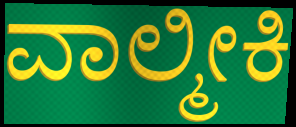
ವಾಲ್ಮೀಕಿ